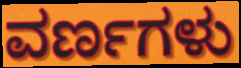
ವರ್ಣಗಳು